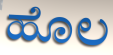
ಹೊಲ